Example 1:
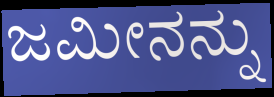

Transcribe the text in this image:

ಜಮೀನನ್ನು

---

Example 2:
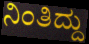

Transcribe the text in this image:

ನಿಂತಿದ್ದು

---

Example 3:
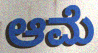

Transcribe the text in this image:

ಆಮೆ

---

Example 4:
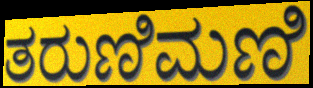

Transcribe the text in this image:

ತರುಣಿಮಣಿ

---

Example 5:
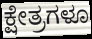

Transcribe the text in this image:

ಕ್ಷೇತ್ರಗಳೂ